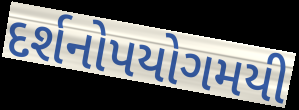
દર્શનોપયોગમયી